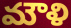
మౌళి